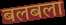
बलबला